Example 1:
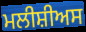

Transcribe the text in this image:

ਮਲੀਸ਼ੀਅਸ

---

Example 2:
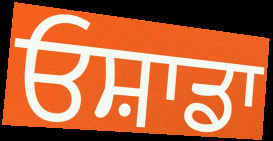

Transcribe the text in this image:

ਓਸ਼ਾਡਾ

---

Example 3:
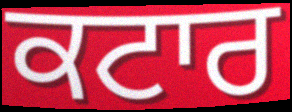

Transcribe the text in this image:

ਕਟਾਰ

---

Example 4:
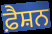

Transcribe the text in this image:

ਫ਼ੈਸ਼ਨ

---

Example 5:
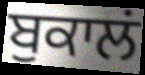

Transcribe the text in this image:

ਬੁਕਾਲਂ